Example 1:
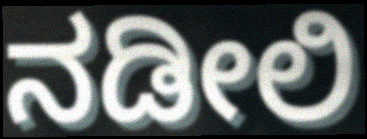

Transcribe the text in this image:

ನಡೀಲಿ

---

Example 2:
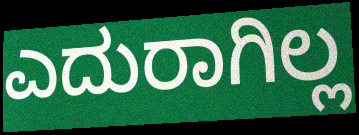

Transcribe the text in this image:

ಎದುರಾಗಿಲ್ಲ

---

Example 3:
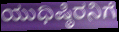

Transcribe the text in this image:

ಯುಧಿಷ್ಠಿರನಿಗೆ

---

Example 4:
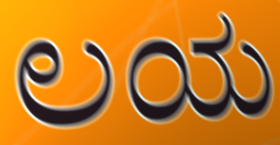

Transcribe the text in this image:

ಲಯ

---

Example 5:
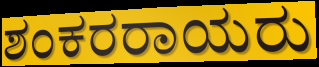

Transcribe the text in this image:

ಶಂಕರರಾಯರು